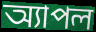
অ্যাপল